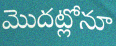
మొదట్లోనూ